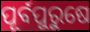
ପୂର୍ବପୁରୁଷେ